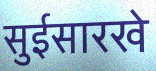
सुईसारखे